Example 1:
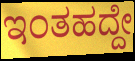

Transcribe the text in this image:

ಇಂತಹದ್ದೇ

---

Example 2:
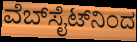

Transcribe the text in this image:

ವೆಬ್‍ಸೈಟ್‍ನಿಂದ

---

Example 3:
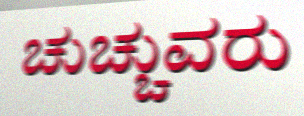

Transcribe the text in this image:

ಚುಚ್ಚುವರು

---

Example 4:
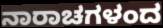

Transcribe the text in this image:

ನಾರಾಚಗಳಂದ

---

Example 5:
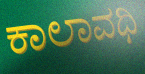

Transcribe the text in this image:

ಕಾಲಾವಧಿ